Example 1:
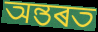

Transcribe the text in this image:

অন্তৰত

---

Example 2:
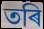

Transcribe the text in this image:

তৰি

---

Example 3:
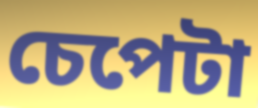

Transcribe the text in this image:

চেপেটা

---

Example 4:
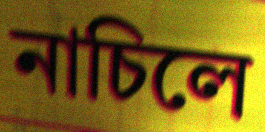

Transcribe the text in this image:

নাচিলে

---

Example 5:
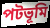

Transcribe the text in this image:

পটভূমি